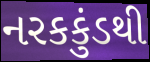
નરકકુંડથી